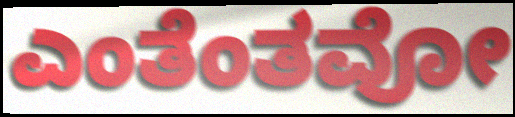
ಎಂತೆಂತವೋ